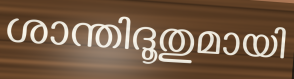
ശാന്തിദൂതുമായി